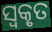
ସ୍ୱକୃତ